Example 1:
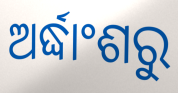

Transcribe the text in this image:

ଅର୍ଦ୍ଧାଂଶରୁ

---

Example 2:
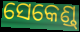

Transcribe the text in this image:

ସେକେଣ୍ଡ୍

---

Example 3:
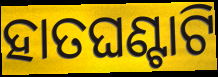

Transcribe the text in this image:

ହାତଘଣ୍ଟାଟି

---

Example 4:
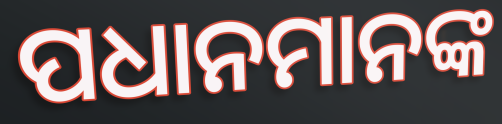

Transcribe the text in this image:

ପଧାନମାନଙ୍କ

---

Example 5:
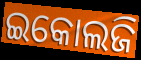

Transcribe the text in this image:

ଇକୋଲଜି